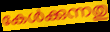
കേൾക്കുന്നതു